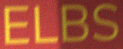
ELBS